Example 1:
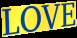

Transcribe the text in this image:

LOVE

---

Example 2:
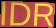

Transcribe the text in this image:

IDR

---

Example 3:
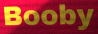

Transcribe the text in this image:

Booby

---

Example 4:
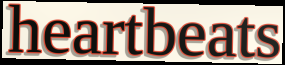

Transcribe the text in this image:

heartbeats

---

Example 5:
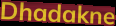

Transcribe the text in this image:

Dhadakne